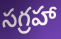
సగ్రహా